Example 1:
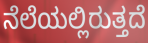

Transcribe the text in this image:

ನೆಲೆಯಲ್ಲಿರುತ್ತದೆ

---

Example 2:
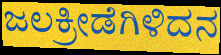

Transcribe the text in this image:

ಜಲಕ್ರೀಡೆಗಿಳಿದನ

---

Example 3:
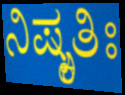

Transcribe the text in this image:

ನಿಷ್ಕೃತಿಃ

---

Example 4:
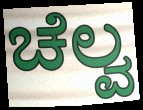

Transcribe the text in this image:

ಚೆಲ್ವ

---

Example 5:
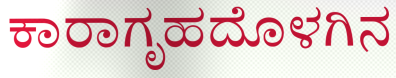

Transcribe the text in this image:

ಕಾರಾಗೃಹದೊಳಗಿನ